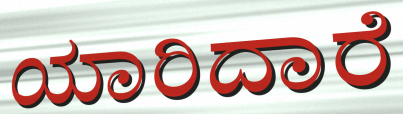
ಯಾರಿದಾರೆ